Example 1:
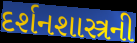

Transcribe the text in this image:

દર્શનશાસ્ત્રની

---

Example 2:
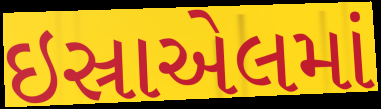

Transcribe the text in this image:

ઇસ્રાએલમાં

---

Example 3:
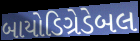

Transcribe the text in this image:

બાયોડિગ્રેડેબલ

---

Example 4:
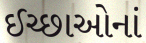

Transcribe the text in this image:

ઈચ્છાઓનાં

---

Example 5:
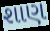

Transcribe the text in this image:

શાણ